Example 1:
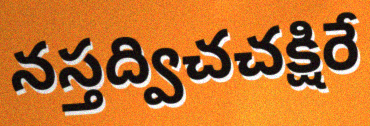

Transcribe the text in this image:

నస్తద్విచచక్షిరే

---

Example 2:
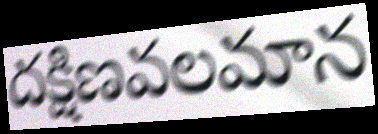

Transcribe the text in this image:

దక్షిణవలమాన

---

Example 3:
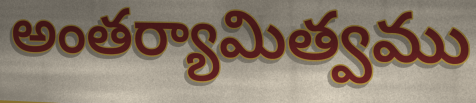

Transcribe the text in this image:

అంతర్యామిత్వము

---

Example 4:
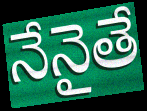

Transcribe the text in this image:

నేనైతే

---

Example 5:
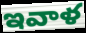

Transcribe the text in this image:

ఇవాళ